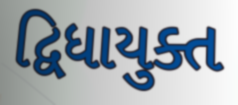
દ્વિધાયુક્ત